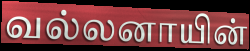
வல்லனாயின்